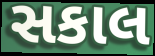
સકાલ